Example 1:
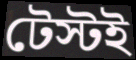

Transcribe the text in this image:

টেস্টই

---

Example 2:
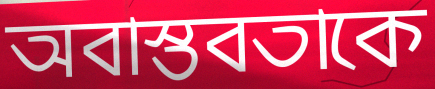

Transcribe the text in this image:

অবাস্তবতাকে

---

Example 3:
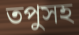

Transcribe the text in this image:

তপুসহ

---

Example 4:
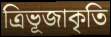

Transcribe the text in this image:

ত্রিভূজাকৃতি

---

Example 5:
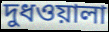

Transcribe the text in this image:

দুধওয়ালা